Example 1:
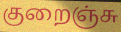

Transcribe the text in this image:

குறைஞ்சு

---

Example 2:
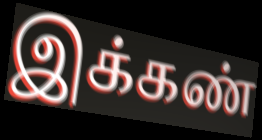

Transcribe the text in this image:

இக்கண்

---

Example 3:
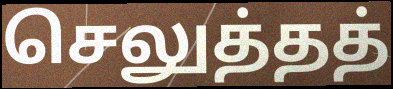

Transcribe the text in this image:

செலுத்தத்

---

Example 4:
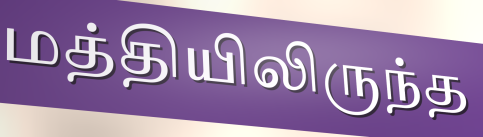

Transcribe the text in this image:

மத்தியிலிருந்த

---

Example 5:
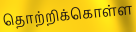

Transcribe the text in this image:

தொற்றிக்கொள்ள